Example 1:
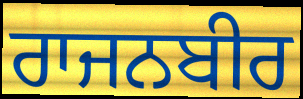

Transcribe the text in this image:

ਰਾਜਨਬੀਰ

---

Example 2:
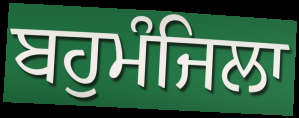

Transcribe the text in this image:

ਬਹੁਮੰਜਿਲਾ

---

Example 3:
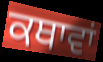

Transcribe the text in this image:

ਕਥਾਵਾਂ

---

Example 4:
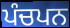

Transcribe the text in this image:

ਪੰਚਪਨ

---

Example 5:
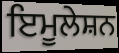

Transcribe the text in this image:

ਇਮੂਲੇਸ਼ਨ